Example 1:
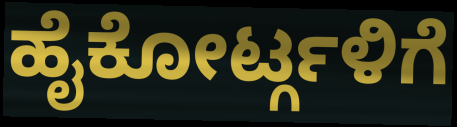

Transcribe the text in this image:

ಹೈಕೋರ್ಟ್ಗಳಿಗೆ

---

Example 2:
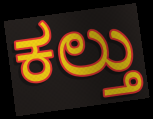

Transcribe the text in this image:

ಕಲ್ತು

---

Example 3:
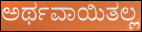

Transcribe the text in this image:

ಅರ್ಥವಾಯಿತಲ್ಲ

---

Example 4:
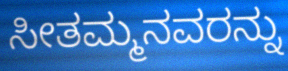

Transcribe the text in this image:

ಸೀತಮ್ಮನವರನ್ನು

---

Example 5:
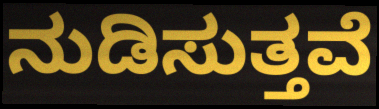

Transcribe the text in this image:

ನುಡಿಸುತ್ತವೆ